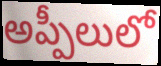
అప్పీలులో